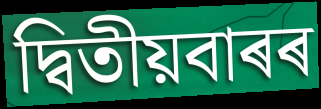
দ্বিতীয়বাৰৰ